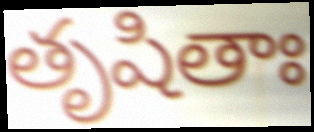
తృషితాః